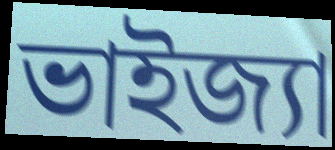
ভাইজ্যা